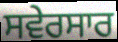
ਸਵੇਰਸਾਰ